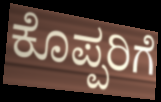
ಕೊಪ್ಪರಿಗೆ